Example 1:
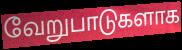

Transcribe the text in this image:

வேறுபாடுகளாக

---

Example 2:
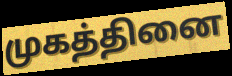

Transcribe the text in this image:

முகத்தினை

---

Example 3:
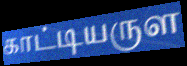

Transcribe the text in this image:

காட்டியருள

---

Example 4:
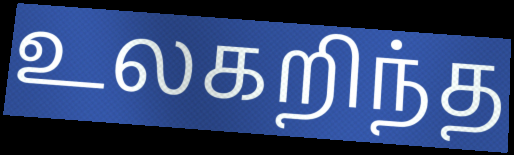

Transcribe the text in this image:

உலகறிந்த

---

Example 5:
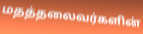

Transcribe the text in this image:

மதத்தலைவர்களின்